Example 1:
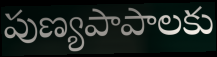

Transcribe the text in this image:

పుణ్యపాపాలకు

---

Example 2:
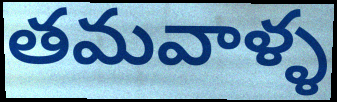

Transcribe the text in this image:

తమవాళ్ళ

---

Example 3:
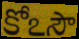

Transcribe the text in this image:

కోఽసౌ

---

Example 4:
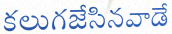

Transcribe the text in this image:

కలుగజేసినవాడే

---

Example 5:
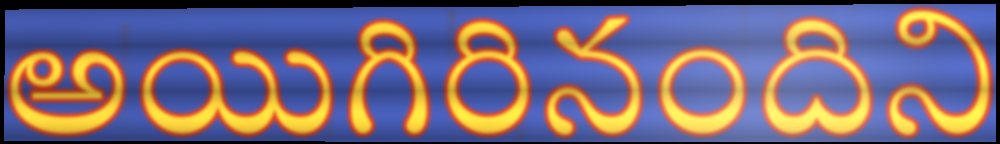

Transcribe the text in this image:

అయిగిరినందిని